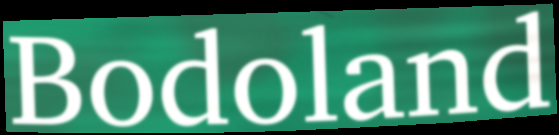
Bodoland